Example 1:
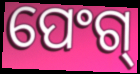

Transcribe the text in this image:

ପେଂଗ୍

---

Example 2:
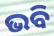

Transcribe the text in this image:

ଭବି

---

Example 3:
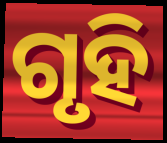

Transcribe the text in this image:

ଗୃହି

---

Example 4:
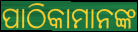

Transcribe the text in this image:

ପାଠିକାମାନଙ୍କ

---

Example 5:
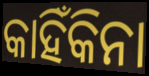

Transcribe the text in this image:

କାହିଁକିନା